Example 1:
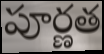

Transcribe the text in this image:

పూర్ణత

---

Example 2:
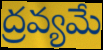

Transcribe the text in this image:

ద్రవ్యమే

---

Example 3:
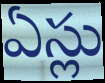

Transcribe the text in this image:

ఏస్లు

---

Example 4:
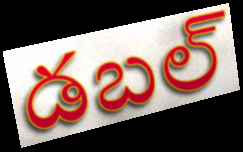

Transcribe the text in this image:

డబల్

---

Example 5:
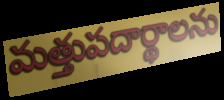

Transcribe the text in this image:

మత్తుపదార్థాలను